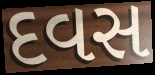
દવસ